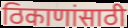
ठिकाणांसाठी